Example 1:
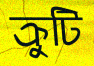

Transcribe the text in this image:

ক্রুটি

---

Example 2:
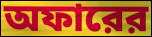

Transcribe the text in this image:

অফারের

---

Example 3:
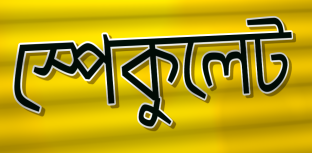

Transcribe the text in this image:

স্পেকুলেট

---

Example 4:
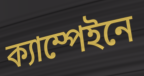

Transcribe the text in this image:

ক্যাম্পেইনে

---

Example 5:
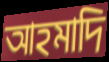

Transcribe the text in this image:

আহমাদি